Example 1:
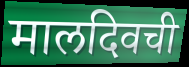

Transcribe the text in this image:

मालदिवची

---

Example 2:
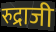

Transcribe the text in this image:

रुद्राजी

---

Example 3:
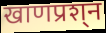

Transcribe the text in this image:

खाणप्रश्न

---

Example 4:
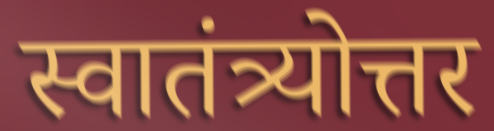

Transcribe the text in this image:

स्वातंत्र्योत्तर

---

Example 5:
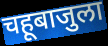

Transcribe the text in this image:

चहूबाजुला